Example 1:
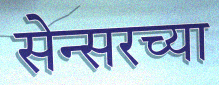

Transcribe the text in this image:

सेन्सरच्या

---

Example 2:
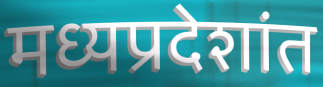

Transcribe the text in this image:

मध्यप्रदेशांत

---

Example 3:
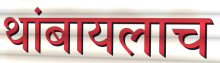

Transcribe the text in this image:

थांबायलाच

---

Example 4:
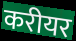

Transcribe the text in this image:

करीयर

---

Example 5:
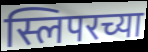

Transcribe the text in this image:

स्लिपरच्या